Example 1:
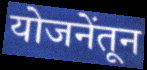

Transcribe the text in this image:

योजनेंतून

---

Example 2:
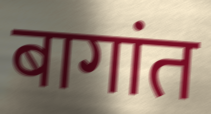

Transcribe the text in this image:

बागांत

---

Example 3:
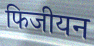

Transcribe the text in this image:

फिजीयन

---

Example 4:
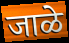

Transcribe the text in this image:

जाळे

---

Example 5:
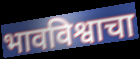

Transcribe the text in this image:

भावविश्वाचा